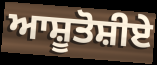
ਆਸ਼ੂਤੋਸ਼ੀਏ